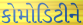
કોમોડિટીને